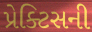
પ્રેક્ટિસની